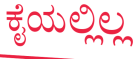
ಕೈಯಲ್ಲಿಲ್ಲ